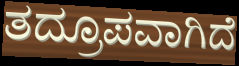
ತದ್ರೂಪವಾಗಿದೆ